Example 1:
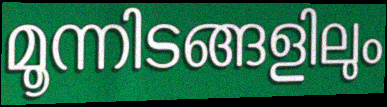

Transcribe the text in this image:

മൂന്നിടങ്ങളിലും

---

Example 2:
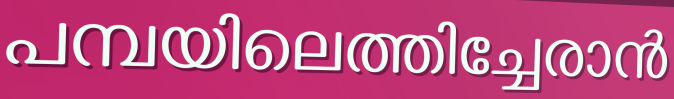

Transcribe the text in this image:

പമ്പയിലെത്തിച്ചേരാൻ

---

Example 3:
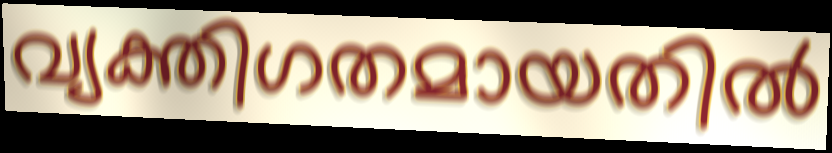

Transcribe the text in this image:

വ്യക്തിഗതമായതിൽ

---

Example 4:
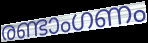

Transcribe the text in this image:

രണ്ടാംഗണം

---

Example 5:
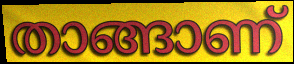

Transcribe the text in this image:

താങ്ങാണ്